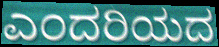
ಎಂದರಿಯದ